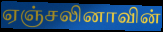
ஏஞ்சலினாவின்